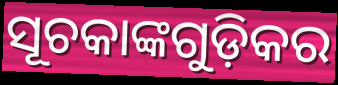
ସୂଚକାଙ୍କଗୁଡ଼ିକର